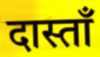
दास्ताँ